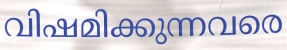
വിഷമിക്കുന്നവരെ